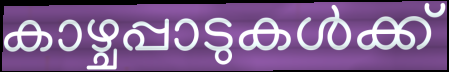
കാഴ്ചപ്പാടുകൾക്ക്